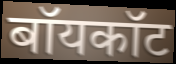
बॉयकॉट